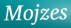
Mojzes